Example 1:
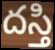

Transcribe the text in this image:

దస్తి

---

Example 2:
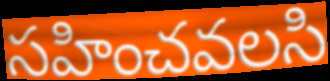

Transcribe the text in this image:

సహించవలసి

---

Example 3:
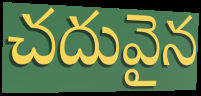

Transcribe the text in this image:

చదువైన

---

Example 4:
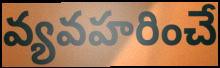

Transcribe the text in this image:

వ్యవహరించే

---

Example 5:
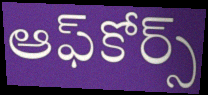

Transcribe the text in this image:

ఆఫ్‌కోర్స్